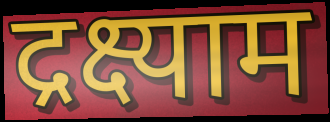
द्रक्ष्याम